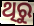
ଥିରୁ